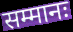
सम्मानः